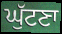
ਘੁੱਟਣਾ